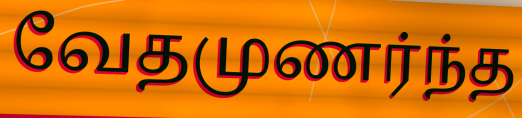
வேதமுணர்ந்த